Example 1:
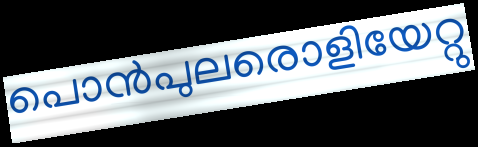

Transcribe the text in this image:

പൊൻപുലരൊളിയേറ്റു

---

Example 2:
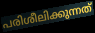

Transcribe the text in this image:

പരിശീലിക്കുന്നത്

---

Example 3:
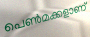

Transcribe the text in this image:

പെൺമക്കളാണ്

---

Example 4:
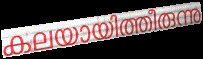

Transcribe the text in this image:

കലയായിത്തീരുന്നു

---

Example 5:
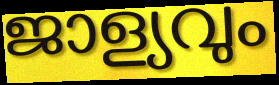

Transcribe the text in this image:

ജാള്യവും